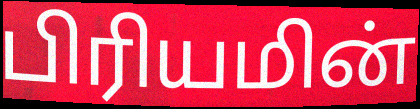
பிரியமின்